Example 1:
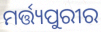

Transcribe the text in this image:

ମର୍ତ୍ତ୍ୟପୁରୀର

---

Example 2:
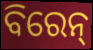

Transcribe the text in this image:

ବିରେନ୍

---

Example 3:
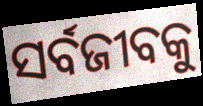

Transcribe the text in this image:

ସର୍ବଜୀବକୁ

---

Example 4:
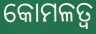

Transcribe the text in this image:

କୋମଳତ୍ୱ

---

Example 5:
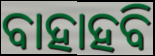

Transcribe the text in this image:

ବାହାହବି